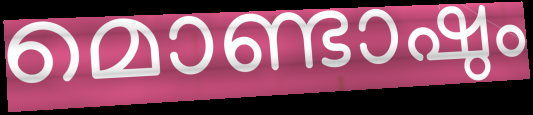
മൊണ്ടാഷും